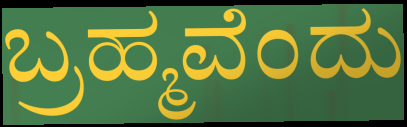
ಬ್ರಹ್ಮವೆಂದು